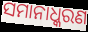
ସମାନାଧ୍କରଣ